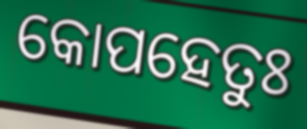
କୋପହେତୁଃ